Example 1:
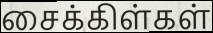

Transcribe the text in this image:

சைக்கிள்கள்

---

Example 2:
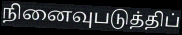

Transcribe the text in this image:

நினைவுபடுத்திப்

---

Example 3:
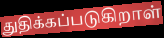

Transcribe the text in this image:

துதிக்கப்படுகிறாள்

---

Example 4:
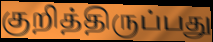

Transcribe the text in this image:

குறித்திருப்பது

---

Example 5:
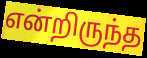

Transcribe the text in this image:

என்றிருந்த